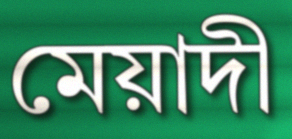
মেয়াদী